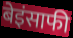
बेइंसाफी